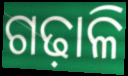
ଗଢ଼ାଳି